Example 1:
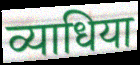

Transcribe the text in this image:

व्याधिया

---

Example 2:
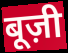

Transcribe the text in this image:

बूज़ी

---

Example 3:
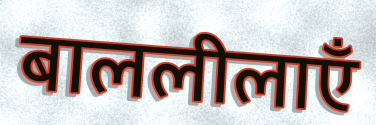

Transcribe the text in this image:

बाललीलाएँ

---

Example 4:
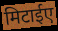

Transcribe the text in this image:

मिटाईए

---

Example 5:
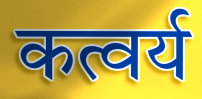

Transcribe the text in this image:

कत्वर्य